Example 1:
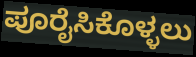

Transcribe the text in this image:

ಪೂರೈಸಿಕೊಳ್ಳಲು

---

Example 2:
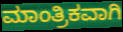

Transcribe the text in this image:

ಮಾಂತ್ರಿಕವಾಗಿ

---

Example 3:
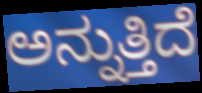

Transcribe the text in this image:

ಅನ್ನುತ್ತಿದೆ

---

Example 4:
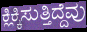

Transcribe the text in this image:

ಕ್ಲಿಕ್ಕಿಸುತ್ತಿದ್ದೆವು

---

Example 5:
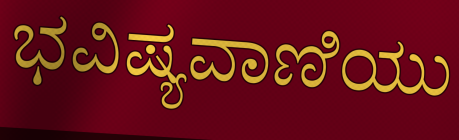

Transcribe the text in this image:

ಭವಿಷ್ಯವಾಣಿಯು